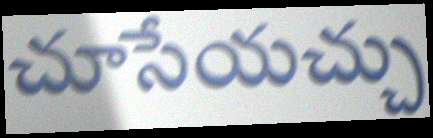
చూసేయచ్చు